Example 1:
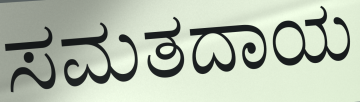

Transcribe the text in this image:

ಸಮತದಾಯ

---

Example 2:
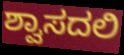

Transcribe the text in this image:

ಶ್ವಾಸದಲಿ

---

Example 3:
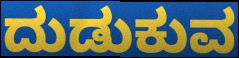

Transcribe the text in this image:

ದುಡುಕುವ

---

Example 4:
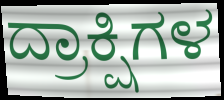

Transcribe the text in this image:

ದ್ರಾಕ್ಷಿಗಳ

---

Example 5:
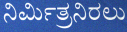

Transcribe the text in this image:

ನಿರ್ಮಿತ್ರನಿರಲು